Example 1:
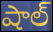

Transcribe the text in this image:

షాల్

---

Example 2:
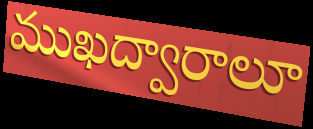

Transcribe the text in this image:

ముఖద్వారాలూ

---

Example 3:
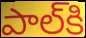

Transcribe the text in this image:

పాల్‌కి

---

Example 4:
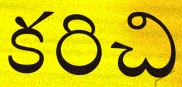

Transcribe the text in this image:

కరిచి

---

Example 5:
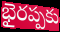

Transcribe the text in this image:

భైరప్పకు